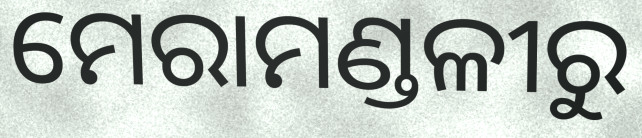
ମେରାମଣ୍ଡଳୀରୁ